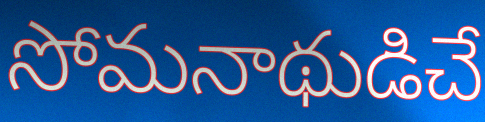
సోమనాథుడిచే